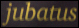
jubatus